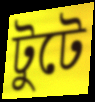
টুটে